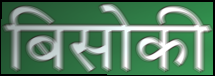
बिसोकी